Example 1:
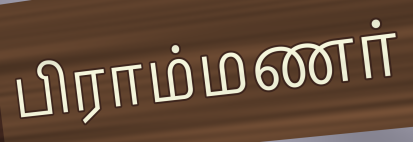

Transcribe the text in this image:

பிராம்மணர்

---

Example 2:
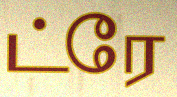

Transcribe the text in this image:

ட்ரே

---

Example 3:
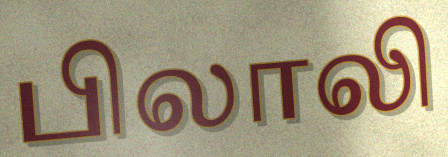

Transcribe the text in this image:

பிலாலி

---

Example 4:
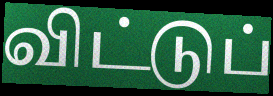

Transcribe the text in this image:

விட்டுப்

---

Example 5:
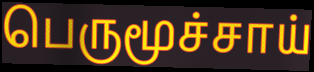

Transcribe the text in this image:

பெருமூச்சாய்